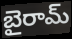
బైరామ్